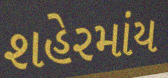
શહેરમાંય